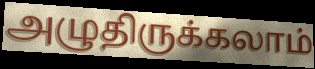
அழுதிருக்கலாம்